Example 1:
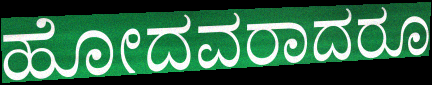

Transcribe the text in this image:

ಹೋದವರಾದರೂ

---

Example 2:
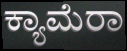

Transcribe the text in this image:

ಕ್ಯಾಮೆರಾ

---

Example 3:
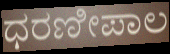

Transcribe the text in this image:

ಧರಣೀಪಾಲ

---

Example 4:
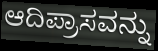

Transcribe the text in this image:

ಆದಿಪ್ರಾಸವನ್ನು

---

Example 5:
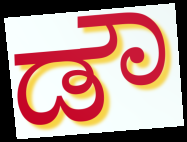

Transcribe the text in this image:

ಡೌ